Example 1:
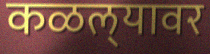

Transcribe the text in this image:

कळल्यावर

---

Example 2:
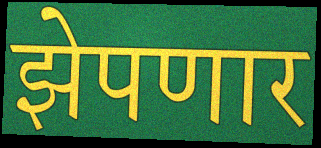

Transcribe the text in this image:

झेपणार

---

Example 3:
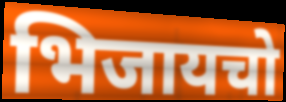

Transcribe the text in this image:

भिजायचो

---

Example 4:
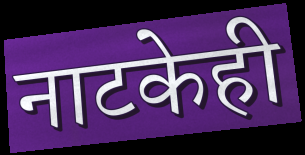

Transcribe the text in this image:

नाटकेही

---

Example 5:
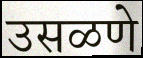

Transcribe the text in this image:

उसळणे